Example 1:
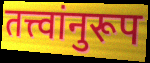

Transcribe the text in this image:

तत्त्वांनुरूप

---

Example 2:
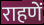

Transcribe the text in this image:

राहणें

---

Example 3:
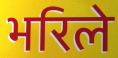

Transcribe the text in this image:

भरिले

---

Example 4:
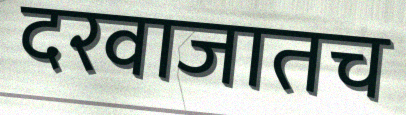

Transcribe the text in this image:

दरवाजातच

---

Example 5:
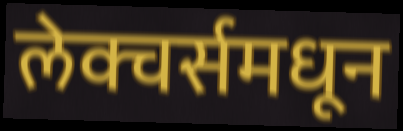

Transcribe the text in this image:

लेक्चर्समधून